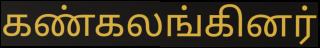
கண்கலங்கினர்